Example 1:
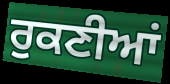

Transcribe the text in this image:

ਰੁਕਣੀਆਂ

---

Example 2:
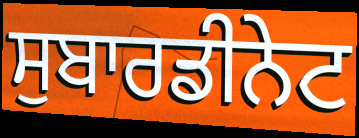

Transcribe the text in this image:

ਸੁਬਾਰਡੀਨੇਟ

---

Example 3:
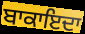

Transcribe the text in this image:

ਬਾਕਾਇਦਾ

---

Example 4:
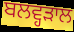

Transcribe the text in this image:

ਬਲਵ੍ਹੜਾਲ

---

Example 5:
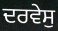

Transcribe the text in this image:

ਦਰਵੇਸੁ